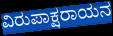
ವಿರುಪಾಕ್ಷರಾಯನ